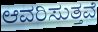
ಆವರಿಸುತ್ತವೆ